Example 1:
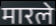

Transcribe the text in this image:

मारले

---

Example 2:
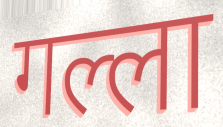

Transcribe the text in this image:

गल्ला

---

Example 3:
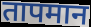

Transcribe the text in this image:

तापमान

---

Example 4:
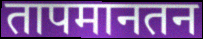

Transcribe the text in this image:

तापमानतन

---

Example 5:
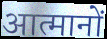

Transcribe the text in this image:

आत्मानों